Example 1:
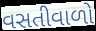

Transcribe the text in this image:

વસતીવાળો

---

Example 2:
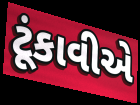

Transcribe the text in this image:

ટૂંકાવીએ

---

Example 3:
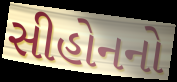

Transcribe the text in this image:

સીહોનનો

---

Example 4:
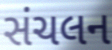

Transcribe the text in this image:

સંચલન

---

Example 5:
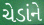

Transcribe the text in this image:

ચેડાંને